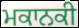
ਮਕਾਨਕੀ